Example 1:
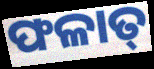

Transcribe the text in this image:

ଫଳାତ୍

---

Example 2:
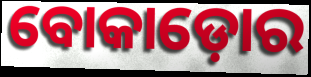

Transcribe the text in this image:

ବୋକାଡ଼ୋର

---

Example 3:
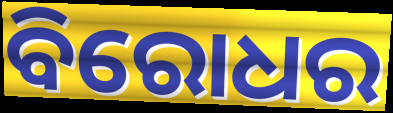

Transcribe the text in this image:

ବିରୋଧର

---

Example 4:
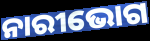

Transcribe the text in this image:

ନାରୀଭୋଗ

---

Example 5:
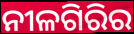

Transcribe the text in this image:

ନୀଳଗିରିର